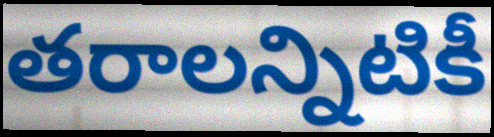
తరాలన్నిటికీ